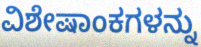
ವಿಶೇಷಾಂಕಗಳನ್ನು